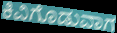
ಕಿವಿಗೊಡುವಾಗ